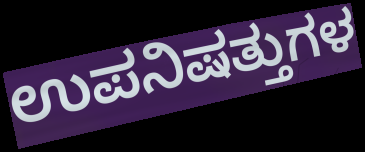
ಉಪನಿಷತ್ತುಗಳ